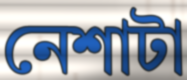
নেশাটা